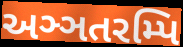
અઞ્ઞતરમ્પિ